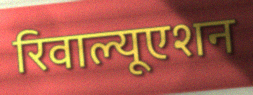
रिवाल्यूएशन